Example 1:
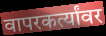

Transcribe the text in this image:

वापरकर्त्यांवर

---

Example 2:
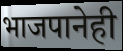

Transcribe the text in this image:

भाजपानेही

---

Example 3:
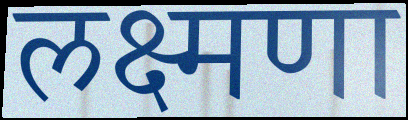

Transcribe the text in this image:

लक्ष्मणा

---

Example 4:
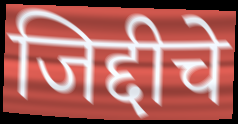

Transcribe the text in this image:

जिद्दीचे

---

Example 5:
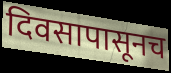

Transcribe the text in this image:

दिवसापासूनच